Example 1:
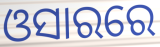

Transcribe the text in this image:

ଓସାରରେ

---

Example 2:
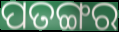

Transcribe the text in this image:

ପତଙ୍ଗର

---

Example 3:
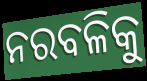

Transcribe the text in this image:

ନରବଳିକୁ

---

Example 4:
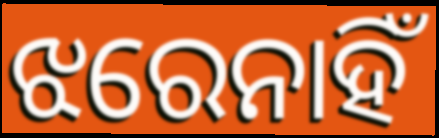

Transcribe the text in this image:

ଝରେନାହିଁ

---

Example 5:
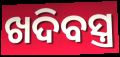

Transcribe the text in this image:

ଖଦିବସ୍ତ୍ର